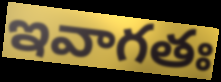
ఇవాగతః